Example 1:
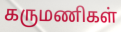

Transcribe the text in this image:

கருமணிகள்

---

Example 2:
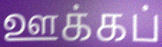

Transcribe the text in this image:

ஊக்கப்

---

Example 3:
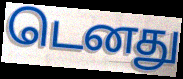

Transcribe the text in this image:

டெனது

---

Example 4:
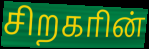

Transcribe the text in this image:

சிறகரின்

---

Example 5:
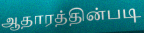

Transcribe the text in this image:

ஆதாரத்தின்படி